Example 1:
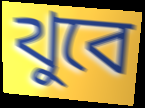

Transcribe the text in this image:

থুবে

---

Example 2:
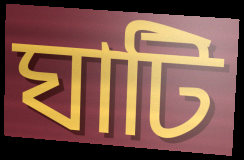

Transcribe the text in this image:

ঘাটি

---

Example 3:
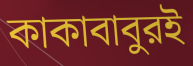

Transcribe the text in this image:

কাকাবাবুরই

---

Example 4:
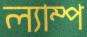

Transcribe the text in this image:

ল্যাম্প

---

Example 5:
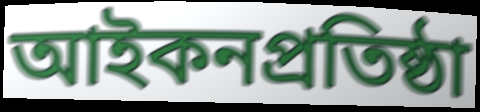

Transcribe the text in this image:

আইকনপ্রতিষ্ঠা